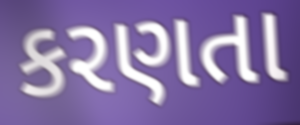
કરણતા